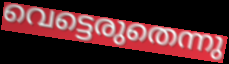
വെട്ടെരുതെന്നു